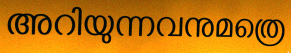
അറിയുന്നവനുമത്രെ